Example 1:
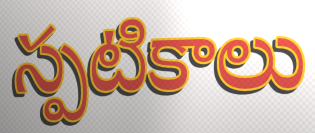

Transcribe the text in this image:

స్పటికాలు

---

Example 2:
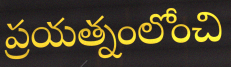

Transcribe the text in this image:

ప్రయత్నంలోంచి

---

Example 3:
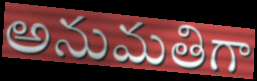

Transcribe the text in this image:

అనుమతిగా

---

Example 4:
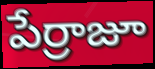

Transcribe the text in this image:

పేర్రాజూ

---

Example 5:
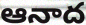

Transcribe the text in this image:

ఆనాద